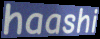
haashi